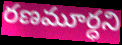
రణమూర్ధని